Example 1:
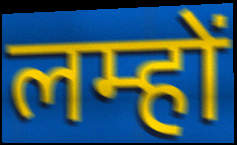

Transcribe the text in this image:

लम्हों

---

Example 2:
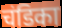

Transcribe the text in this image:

चंडिका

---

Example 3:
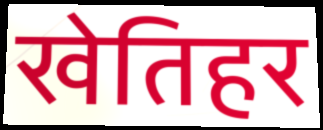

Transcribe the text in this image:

खेतिहर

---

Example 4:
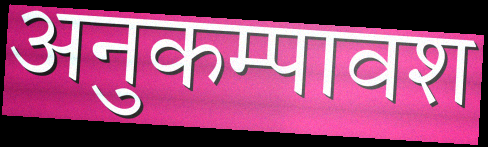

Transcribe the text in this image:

अनुकम्पावश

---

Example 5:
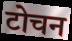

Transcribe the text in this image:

टोचन